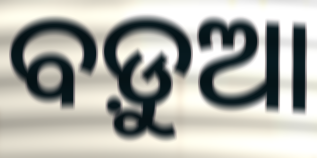
ବଡ଼ୁଆ